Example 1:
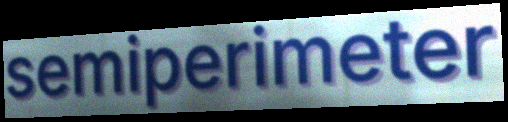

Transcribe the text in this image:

semiperimeter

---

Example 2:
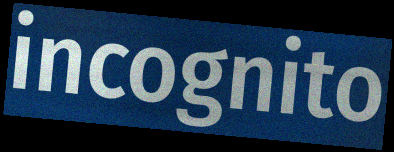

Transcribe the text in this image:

incognito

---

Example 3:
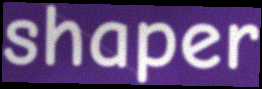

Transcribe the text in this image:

shaper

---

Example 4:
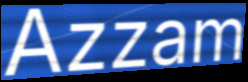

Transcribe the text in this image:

Azzam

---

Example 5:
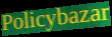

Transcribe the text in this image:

Policybazar